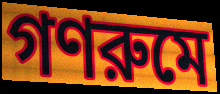
গণরুমে